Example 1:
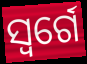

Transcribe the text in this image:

ସ୍ୱର୍ଗେ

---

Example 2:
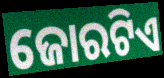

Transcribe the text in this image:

ଜୋରଟିଏ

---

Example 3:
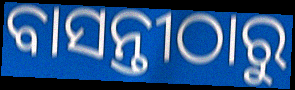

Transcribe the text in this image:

ବାସନ୍ତୀଠାରୁ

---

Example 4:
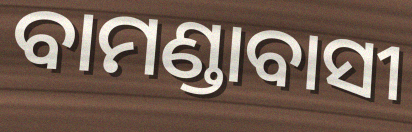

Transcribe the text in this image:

ବାମଣ୍ଡାବାସୀ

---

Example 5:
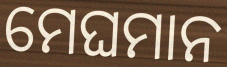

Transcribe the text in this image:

ମେଘମାନ